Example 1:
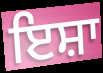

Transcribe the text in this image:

ਇਸ਼ਾ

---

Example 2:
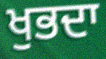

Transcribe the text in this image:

ਖੁਭਦਾ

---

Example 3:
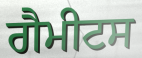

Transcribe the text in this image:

ਗੈਮੀਟਸ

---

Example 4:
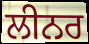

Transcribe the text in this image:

ਲੀਨਰ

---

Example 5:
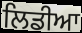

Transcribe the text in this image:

ਲਿਡੀਆ